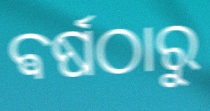
ଵର୍ଷଠାରୁ